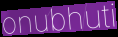
onubhuti